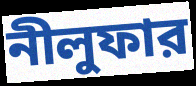
নীলুফার